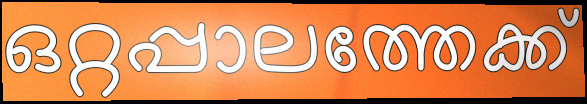
ഒറ്റപ്പാലത്തേക്ക്